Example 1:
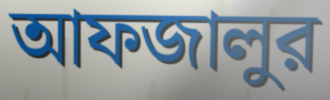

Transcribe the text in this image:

আফজালুর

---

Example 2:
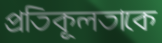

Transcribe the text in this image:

প্রতিকূলতাকে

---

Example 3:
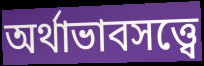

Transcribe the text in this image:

অর্থাভাবসত্ত্বে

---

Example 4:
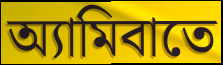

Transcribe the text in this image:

অ্যামিবাতে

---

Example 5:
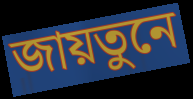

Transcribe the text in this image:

জায়তুনে